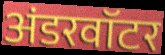
अंडरवॉटर